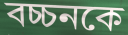
বচ্চনকে